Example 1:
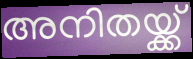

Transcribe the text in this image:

അനിതയ്ക്ക്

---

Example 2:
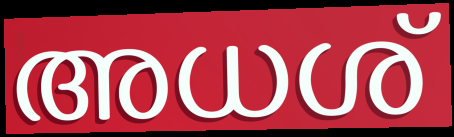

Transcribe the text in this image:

അധശ്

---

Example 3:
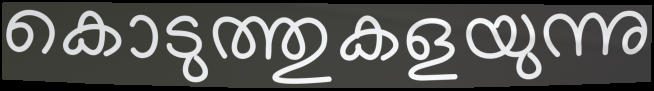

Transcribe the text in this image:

കൊടുത്തുകളയുന്നു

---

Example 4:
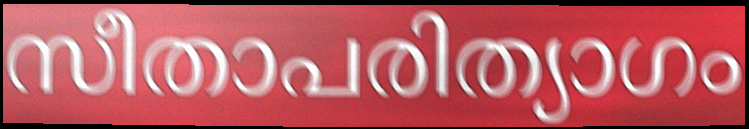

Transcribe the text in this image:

സീതാപരിത്യാഗം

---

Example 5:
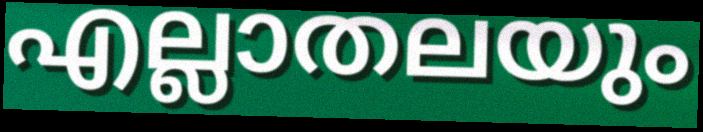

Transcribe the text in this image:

എല്ലാതലയും